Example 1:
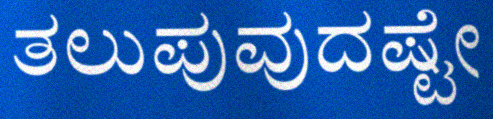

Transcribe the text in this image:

ತಲುಪುವುದಷ್ಟೇ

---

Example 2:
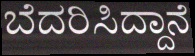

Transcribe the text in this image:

ಬೆದರಿಸಿದ್ದಾನೆ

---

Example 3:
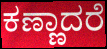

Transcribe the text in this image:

ಕಣ್ಣಾದರೆ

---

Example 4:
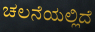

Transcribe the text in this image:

ಚಲನೆಯಲ್ಲಿದೆ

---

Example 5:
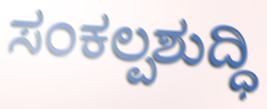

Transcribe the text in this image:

ಸಂಕಲ್ಪಶುದ್ಧಿ